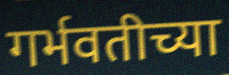
गर्भवतीच्या